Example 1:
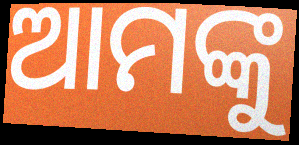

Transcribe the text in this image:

ଆମଙ୍କୁ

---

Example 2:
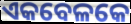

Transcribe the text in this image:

ଏକବେଳକେ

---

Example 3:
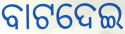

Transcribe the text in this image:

ବାଟଦେଇ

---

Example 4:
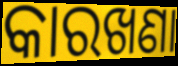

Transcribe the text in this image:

କାରଖଣା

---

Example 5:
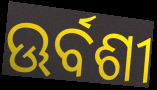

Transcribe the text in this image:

ଊର୍ବଶୀ